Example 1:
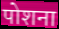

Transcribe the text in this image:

पोशना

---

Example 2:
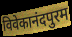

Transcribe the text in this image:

विवेकानंदपुरम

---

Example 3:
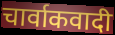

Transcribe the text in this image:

चार्वाकवादी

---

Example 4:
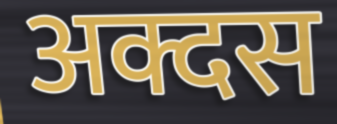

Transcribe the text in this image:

अक्दस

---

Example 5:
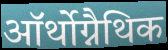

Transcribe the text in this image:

ऑर्थोग्नैथिक